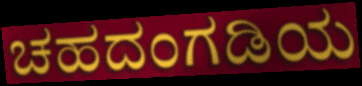
ಚಹದಂಗಡಿಯ